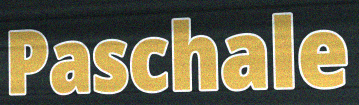
Paschale